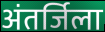
अंतर्जिला